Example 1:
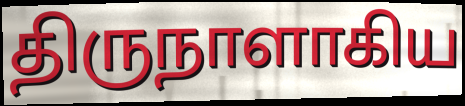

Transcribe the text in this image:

திருநாளாகிய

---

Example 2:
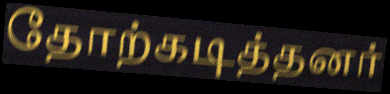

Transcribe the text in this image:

தோற்கடித்தனர்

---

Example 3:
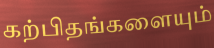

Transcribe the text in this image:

கற்பிதங்களையும்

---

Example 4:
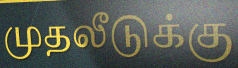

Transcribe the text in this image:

முதலீடுக்கு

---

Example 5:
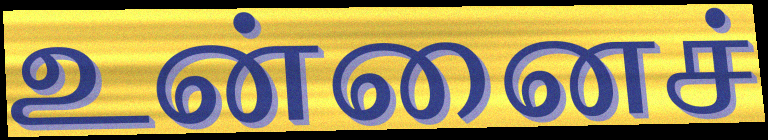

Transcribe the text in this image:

உன்னைச்